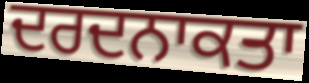
ਦਰਦਨਾਕਤਾ